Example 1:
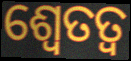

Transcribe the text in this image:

ଶ୍ୱେତତ୍ଵ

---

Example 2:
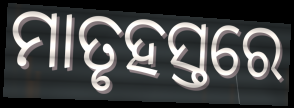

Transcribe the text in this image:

ମାତୃହସ୍ତରେ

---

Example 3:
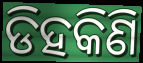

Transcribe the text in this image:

ଡିହକିଣି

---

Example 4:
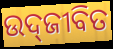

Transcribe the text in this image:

ଉଦ୍‍ଜୀବିତ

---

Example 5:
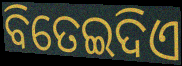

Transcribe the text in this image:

ବିତେଇଦିଏ